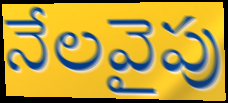
నేలవైపు